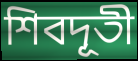
শিবদূতী